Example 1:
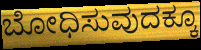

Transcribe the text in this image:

ಬೋಧಿಸುವುದಕ್ಕೂ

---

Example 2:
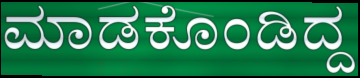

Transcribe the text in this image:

ಮಾಡಕೊಂಡಿದ್ದ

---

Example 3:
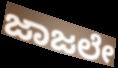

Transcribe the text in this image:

ಜಾಜಲೇ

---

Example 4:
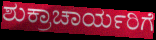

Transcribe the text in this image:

ಶುಕ್ರಾಚಾರ್ಯರಿಗೆ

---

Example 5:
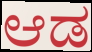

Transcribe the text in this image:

ಆಡ